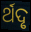
ର୍ଥଦୃ